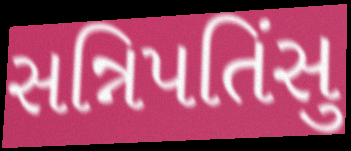
સન્નિપતિંસુ